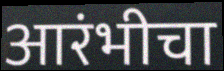
आरंभीचा